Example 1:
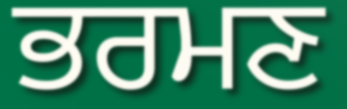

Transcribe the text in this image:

ਭਰਮਣ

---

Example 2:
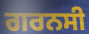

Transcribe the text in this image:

ਗਰਨਸੀ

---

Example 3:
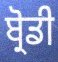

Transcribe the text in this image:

ਬ੍ਰੋਡੀ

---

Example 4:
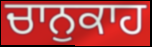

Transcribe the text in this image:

ਚਾਨੁਕਾਹ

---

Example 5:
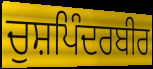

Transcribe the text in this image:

ਚੁਸ਼ਪਿੰਦਰਬੀਰ